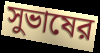
সুভাষের